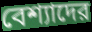
বেশ্যাদের